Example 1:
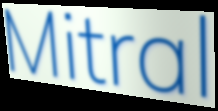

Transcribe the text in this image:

Mitral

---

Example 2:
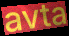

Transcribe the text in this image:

avta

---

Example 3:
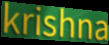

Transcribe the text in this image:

krishna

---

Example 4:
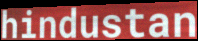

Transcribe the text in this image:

hindustan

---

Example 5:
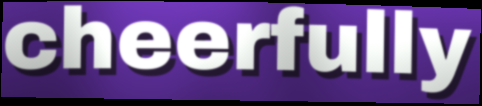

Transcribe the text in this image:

cheerfully